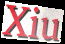
Xiu